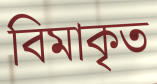
বিমাকৃত